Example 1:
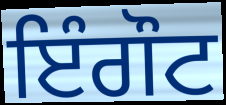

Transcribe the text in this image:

ਇੰਗੌਟ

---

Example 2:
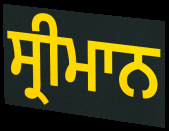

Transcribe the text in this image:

ਸ੍ਰੀਮਾਨ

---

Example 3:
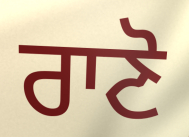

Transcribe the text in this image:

ਰਾਣੋ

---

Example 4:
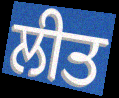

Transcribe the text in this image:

ਲੀਤ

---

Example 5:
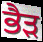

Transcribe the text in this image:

ਭੈੜ